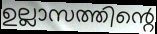
ഉല്ലാസത്തിന്റെ